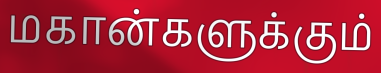
மகான்களுக்கும்